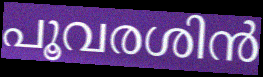
പൂവരശിൻ